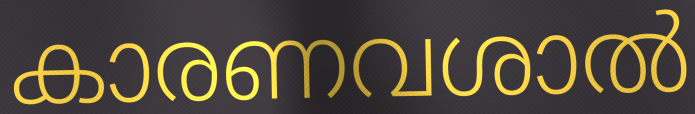
കാരണവശാൽ